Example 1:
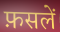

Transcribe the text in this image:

फ़सलें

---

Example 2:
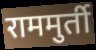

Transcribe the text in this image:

राममुर्ती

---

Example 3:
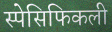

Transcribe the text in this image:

स्पेसिफिकली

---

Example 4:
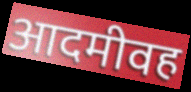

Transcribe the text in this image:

आदमीवह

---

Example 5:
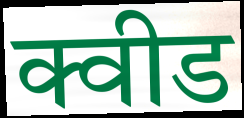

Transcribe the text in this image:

क्वीड